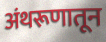
अंथरूणातून